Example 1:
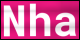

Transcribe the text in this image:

Nha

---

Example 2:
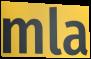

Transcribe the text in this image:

mla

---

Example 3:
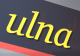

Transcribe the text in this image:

ulna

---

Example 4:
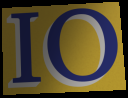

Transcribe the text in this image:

IO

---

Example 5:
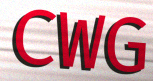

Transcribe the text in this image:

CWG